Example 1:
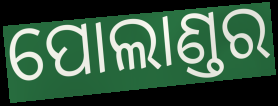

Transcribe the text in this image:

ପୋଲାଣ୍ଡର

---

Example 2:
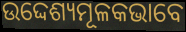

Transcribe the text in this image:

ଉଦ୍ଦେଶ୍ୟମୂଳକଭାବେ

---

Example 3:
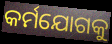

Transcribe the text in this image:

କର୍ମଯୋଗକୁ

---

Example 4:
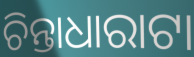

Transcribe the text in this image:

ଚିନ୍ତାଧାରାଟା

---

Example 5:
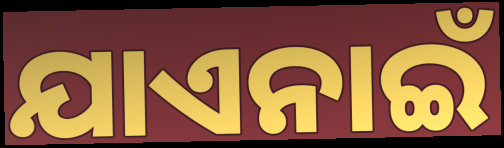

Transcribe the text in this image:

ଯାଏନାଇଁ